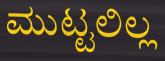
ಮುಟ್ಟಲಿಲ್ಲ